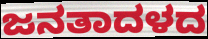
ಜನತಾದಳದ